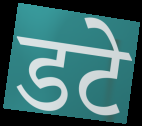
डटे